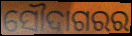
ସୌଦାଗରର